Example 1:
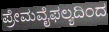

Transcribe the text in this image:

ಪ್ರೇಮವೈಫಲ್ಯದಿಂದ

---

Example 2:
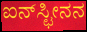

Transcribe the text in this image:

ಐನ್‌ಸ್ಟೀನನ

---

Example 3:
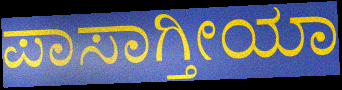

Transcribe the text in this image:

ಪಾಸಾಗ್ತೀಯಾ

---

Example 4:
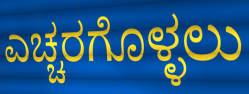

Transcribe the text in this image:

ಎಚ್ಚರಗೊಳ್ಳಲು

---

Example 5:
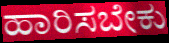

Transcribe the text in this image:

ಹಾರಿಸಬೇಕು